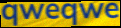
qweqwe